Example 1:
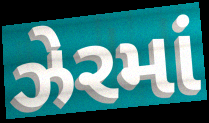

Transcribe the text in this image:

ઝેરમાં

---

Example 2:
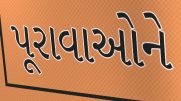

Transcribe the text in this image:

પૂરાવાઓને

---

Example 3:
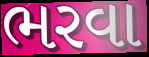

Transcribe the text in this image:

ભરવા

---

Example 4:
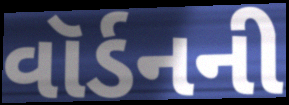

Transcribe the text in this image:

વૉર્ડનની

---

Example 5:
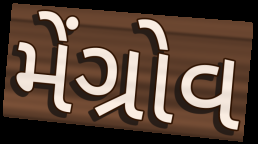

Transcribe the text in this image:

મેંગ્રોવ